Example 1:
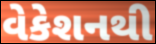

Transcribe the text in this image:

વેકેશનથી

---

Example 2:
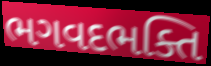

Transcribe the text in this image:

ભગવદભક્તિ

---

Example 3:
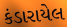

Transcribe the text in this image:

કંડારાયેલ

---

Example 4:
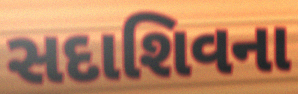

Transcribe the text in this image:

સદાશિવના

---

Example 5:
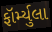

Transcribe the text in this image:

ફૉર્મ્યુલા